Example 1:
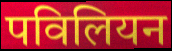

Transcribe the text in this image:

पविलियन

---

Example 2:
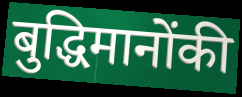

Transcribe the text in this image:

बुद्धिमानोंकी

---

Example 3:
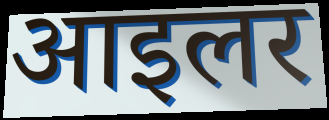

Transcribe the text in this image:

आइलर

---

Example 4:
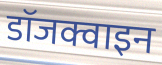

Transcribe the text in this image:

डॉजक्वाइन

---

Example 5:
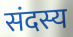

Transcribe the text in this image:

संदस्य